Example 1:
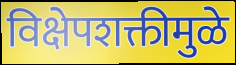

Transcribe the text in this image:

विक्षेपशक्तीमुळे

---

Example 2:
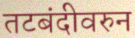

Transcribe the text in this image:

तटबंदीवरुन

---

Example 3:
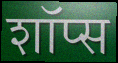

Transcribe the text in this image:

शॉप्स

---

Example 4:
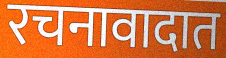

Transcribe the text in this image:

रचनावादात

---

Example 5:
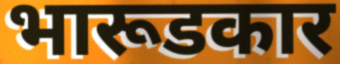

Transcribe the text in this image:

भारूडकार